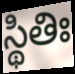
స్థితిః